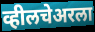
व्हीलचेअरला